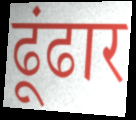
ढूंढार